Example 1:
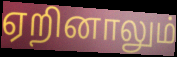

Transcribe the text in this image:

ஏறினாலும்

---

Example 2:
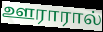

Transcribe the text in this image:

ஊராரால்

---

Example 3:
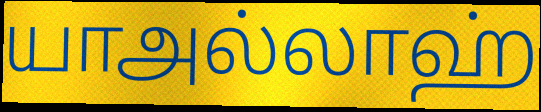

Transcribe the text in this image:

யாஅல்லாஹ்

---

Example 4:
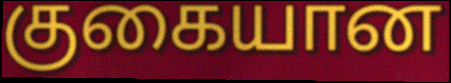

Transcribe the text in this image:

குகையான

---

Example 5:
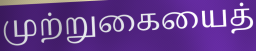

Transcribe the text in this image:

முற்றுகையைத்